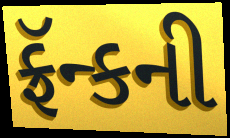
ફ્રૅન્કની